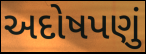
અદોષપણું